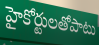
హైకోర్టులతోపాటు